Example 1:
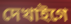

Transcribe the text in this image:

দেখাইগে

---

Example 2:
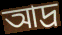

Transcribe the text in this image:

আদ্র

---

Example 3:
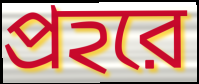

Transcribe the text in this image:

প্রহরে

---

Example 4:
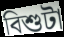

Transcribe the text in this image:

বিশুটা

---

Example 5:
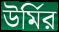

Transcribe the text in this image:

উর্মির